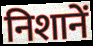
निशानें